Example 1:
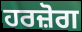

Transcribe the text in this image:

ਹਰਜ਼ੋਗ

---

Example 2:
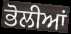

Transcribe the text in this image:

ਭੋਲੀਆਂ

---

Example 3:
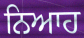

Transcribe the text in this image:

ਨਿਆਹ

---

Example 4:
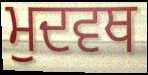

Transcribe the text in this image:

ਮੁਦਵਥ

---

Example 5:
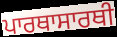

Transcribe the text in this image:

ਪਾਰਥਾਸਾਰਥੀ